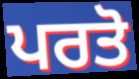
ਪਰਤੋ